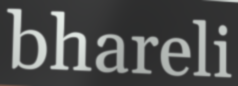
bhareli